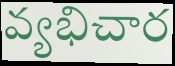
వ్యభిచార